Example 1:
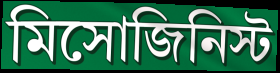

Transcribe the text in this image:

মিসোজিনিস্ট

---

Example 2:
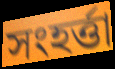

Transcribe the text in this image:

সংহর্ত্তা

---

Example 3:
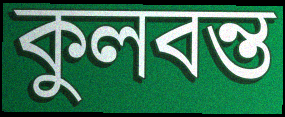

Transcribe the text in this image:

কুলবন্ত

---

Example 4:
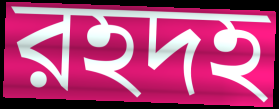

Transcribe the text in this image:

রহদহ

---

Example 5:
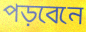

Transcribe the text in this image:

পড়বেনে